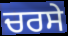
ਚਰਸੇ